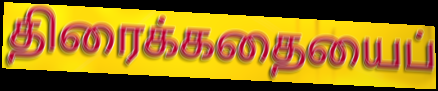
திரைக்கதையைப்